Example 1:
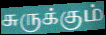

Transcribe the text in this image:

சுருக்கும்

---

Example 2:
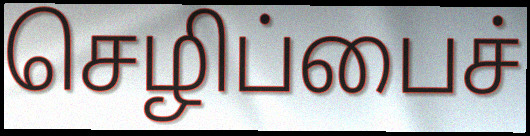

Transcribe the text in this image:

செழிப்பைச்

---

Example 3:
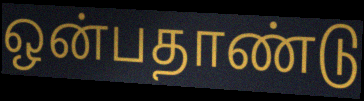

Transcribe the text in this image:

ஒன்பதாண்டு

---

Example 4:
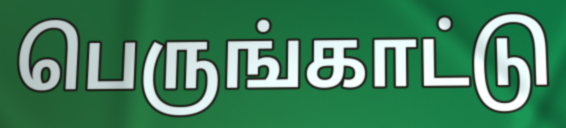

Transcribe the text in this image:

பெருங்காட்டு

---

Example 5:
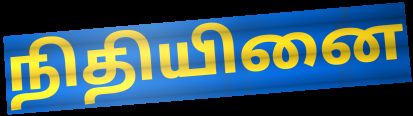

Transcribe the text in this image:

நிதியினை